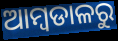
ଆମ୍ବଡାଳରୁ